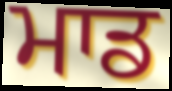
ਮਾਡ